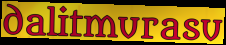
dalitmurasu